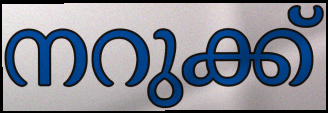
നറുക്ക്